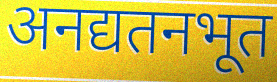
अनद्यतनभूत